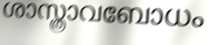
ശാസ്ത്രാവബോധം